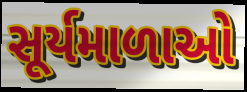
સૂર્યમાળાઓ